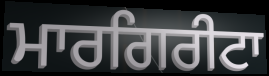
ਮਾਰਗਿਰੀਟਾ